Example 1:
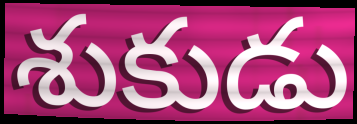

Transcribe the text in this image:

శుకుడు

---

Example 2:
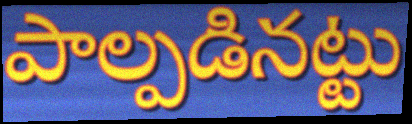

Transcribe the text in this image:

పాల్పడినట్టు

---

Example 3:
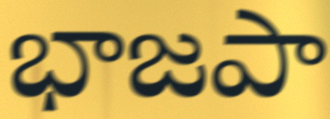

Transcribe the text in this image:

భాజపా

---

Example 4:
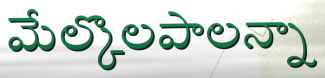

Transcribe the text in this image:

మేల్కొలపాలన్నా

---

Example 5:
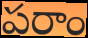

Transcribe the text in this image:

పరాం